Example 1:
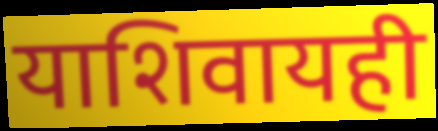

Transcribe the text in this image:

याशिवायही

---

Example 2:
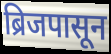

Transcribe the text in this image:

ब्रिजपासून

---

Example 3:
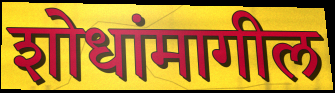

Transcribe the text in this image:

शोधांमागील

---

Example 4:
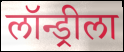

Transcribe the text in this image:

लॉन्ड्रीला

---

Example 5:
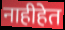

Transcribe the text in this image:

नाहीहेत